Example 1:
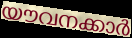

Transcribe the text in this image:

യൗവനക്കാർ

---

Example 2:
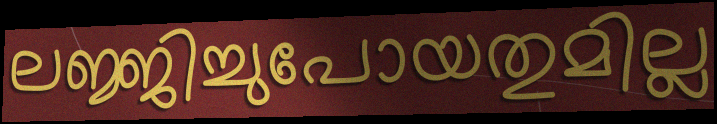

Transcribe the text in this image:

ലജ്ജിച്ചുപോയതുമില്ല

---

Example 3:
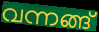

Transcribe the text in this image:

വന്നങ്ങ്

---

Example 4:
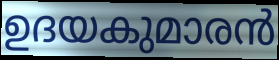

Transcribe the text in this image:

ഉദയകുമാരൻ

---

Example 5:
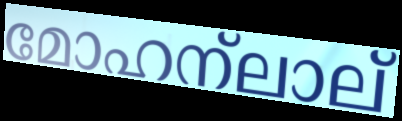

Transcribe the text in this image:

മോഹന്ലാല്